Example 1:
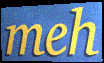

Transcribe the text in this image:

meh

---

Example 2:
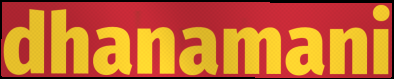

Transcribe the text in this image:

dhanamani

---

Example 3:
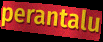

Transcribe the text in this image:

perantalu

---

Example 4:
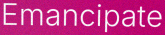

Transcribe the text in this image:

Emancipate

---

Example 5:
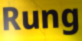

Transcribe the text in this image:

Rung